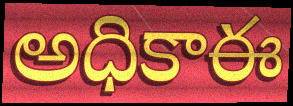
అధికాఈ